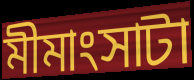
মীমাংসাটা